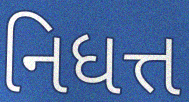
નિધત્ત